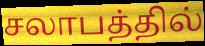
சலாபத்தில்